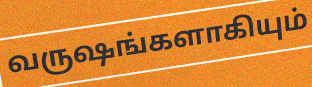
வருஷங்களாகியும்